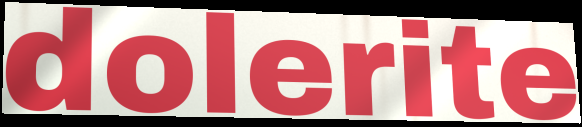
dolerite